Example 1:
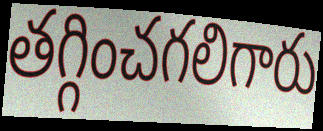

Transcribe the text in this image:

తగ్గించగలిగారు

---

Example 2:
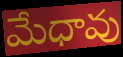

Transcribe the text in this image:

మేధావు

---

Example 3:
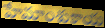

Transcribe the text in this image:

హేమాంశుకాయ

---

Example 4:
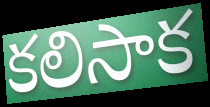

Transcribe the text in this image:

కలిసాక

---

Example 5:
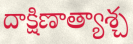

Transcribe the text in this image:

దాక్షిణాత్యాశ్చ